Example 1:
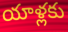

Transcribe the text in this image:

యాళ్లకు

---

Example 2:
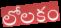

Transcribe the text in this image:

లోలకం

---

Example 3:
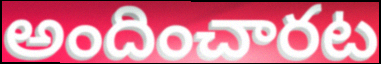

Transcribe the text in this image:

అందించారట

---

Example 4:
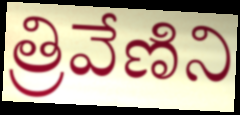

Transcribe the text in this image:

త్రివేణిని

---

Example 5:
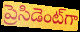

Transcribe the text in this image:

ప్రెసిడెంట్‌గా